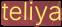
teliya